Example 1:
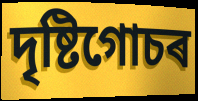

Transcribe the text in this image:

দৃষ্টিগোচৰ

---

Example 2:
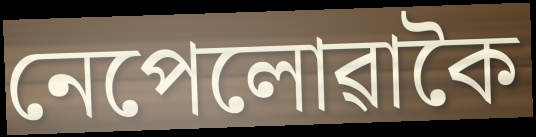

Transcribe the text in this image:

নেপেলোৱাকৈ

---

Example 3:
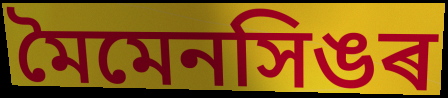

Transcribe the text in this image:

মৈমেনসিঙৰ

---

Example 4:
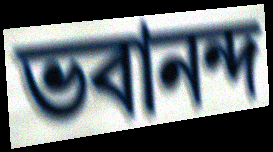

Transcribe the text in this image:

ভবানন্দ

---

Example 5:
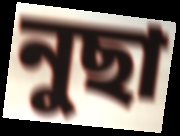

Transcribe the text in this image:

নুছা